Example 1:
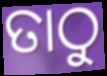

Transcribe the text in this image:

ତାଠୁ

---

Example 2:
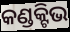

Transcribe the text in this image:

କଣ୍ଡକ୍ଟିଭ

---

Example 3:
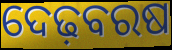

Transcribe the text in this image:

ଦେଢ଼ବରଷ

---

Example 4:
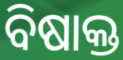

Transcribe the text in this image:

ବିଷାକ୍ତ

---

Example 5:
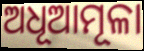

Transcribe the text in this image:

ଅଧୂଆମୂଳା